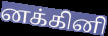
னக்கினி